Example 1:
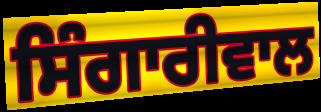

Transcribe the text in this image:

ਸਿੰਗਾਰੀਵਾਲ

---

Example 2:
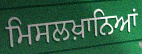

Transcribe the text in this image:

ਮਿਸਲਖ਼ਾਨਿਆਂ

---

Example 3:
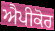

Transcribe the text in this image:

ਐਪੀਕੋਰ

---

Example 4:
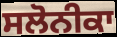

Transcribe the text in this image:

ਸਲੋਨੀਕਾ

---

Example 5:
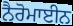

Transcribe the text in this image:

ਨੈਰੋਮਾਈਨ